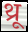
थ्रू